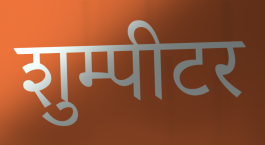
शुम्पीटर